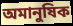
অমানুষিক